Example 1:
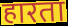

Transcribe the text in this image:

हारता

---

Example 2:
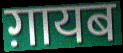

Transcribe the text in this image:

ग़ायब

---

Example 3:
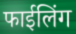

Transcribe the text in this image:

फाईलिंग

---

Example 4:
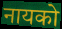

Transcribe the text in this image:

नायको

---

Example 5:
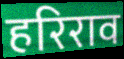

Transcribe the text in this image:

हरिराव